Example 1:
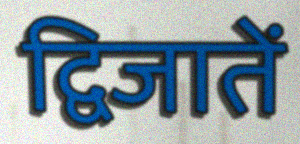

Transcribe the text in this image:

द्विजातें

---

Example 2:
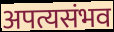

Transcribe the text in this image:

अपत्यसंभव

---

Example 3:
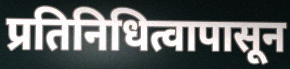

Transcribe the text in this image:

प्रतिनिधित्वापासून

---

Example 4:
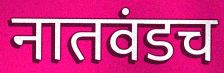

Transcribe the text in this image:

नातवंडच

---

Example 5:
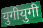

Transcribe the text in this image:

युगीयुगी